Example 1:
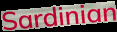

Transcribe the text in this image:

Sardinian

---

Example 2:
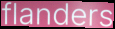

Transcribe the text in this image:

flanders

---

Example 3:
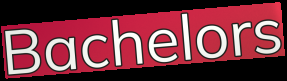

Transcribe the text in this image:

Bachelors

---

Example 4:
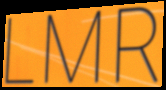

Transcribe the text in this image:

LMR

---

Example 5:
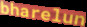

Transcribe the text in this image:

bharelun